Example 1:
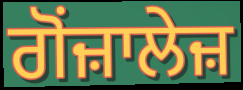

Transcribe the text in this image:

ਗੋਂਜ਼ਾਲੇਜ਼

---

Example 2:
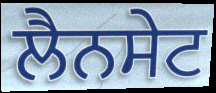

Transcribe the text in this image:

ਲੈਨਸੇਟ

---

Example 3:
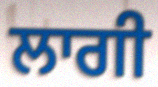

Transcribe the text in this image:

ਲਾਗੀ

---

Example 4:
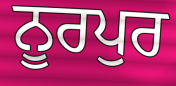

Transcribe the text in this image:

ਨੂਰਪੁਰ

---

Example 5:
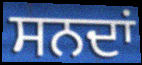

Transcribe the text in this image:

ਸਨਦਾਂ